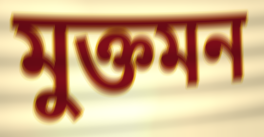
মুক্তমন